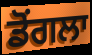
ਡੋਂਗਲਾ